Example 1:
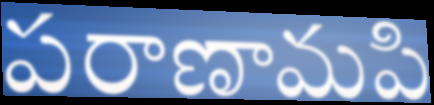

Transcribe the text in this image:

పరాణామపి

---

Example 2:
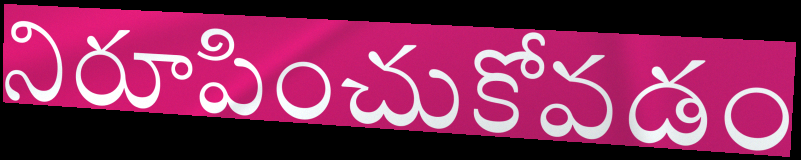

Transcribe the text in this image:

నిరూపించుకోవడం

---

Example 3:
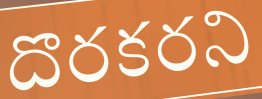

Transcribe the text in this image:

దొరకరని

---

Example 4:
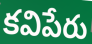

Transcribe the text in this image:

కవిపేరు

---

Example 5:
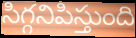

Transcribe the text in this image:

సిగ్గనిపిస్తుంది